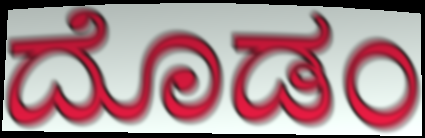
ದೊಡಂ